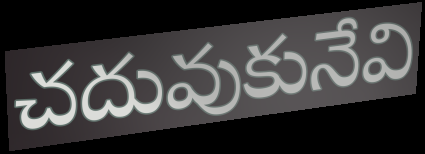
చదువుకునేవి